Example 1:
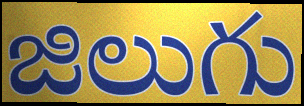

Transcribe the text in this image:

జిలుగు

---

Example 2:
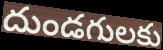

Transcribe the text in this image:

దుండగులకు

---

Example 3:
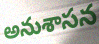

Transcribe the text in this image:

అనుశాసన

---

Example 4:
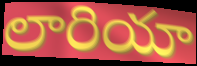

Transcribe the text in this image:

లారియా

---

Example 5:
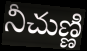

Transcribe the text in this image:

నీచుణ్ణి